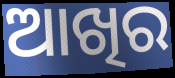
ଆଖିର